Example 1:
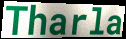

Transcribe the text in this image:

Tharla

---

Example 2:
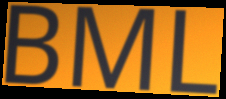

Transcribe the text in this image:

BML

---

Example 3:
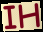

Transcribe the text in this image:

IH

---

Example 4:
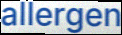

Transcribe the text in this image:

allergen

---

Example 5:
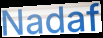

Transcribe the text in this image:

Nadaf